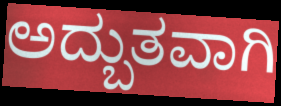
ಅದ್ಬುತವಾಗಿ